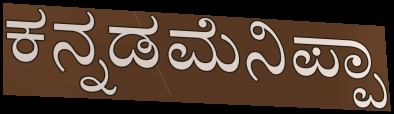
ಕನ್ನಡಮೆನಿಪ್ಪಾ